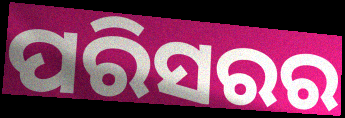
ପରିସରର